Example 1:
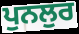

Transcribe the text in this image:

ਪੁਨਲੁਰ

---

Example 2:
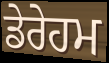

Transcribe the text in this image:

ਡੇਰੇਹਮ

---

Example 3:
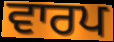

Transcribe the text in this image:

ਵਾਰਪ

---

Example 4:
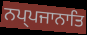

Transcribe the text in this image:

ਨਪ੍ਪਜਾਨਾਤਿ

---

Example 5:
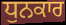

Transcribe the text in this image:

ਧੁਨਕਾਰ